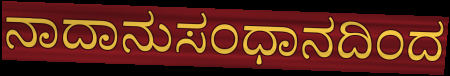
ನಾದಾನುಸಂಧಾನದಿಂದ